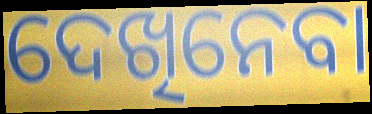
ଦେଖିନେବା